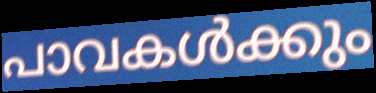
പാവകൾക്കും